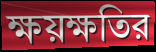
ক্ষয়ক্ষতির